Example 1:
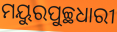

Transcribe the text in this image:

ମୟୁରପୁଚ୍ଛଧାରୀ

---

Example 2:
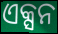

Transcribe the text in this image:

ଏକ୍ସନ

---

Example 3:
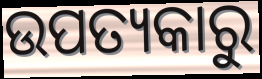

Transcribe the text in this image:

ଉପତ୍ୟକାରୁ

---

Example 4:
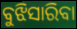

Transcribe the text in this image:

ବୁଝିସାରିବା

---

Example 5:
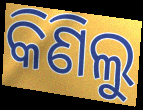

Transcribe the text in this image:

କିଣିଲୁ